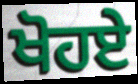
ਖੋਹਏ